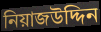
নিয়াজউদ্দিন